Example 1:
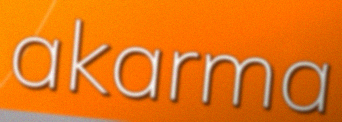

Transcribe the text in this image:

akarma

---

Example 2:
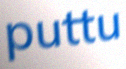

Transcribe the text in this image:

puttu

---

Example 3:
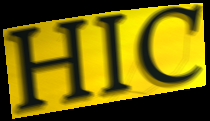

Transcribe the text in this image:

HIC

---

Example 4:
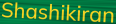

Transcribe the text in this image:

Shashikiran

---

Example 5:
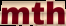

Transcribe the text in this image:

mth